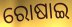
ରୋଷାଇ